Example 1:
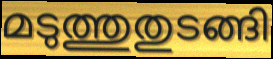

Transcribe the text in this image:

മടുത്തുതുടങ്ങി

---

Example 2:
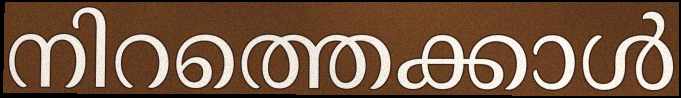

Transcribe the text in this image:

നിറത്തെക്കാൾ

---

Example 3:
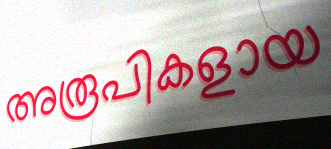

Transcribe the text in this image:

അരൂപികളായ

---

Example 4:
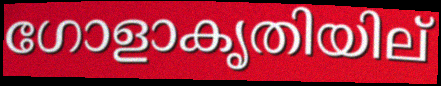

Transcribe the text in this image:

ഗോളാകൃതിയില്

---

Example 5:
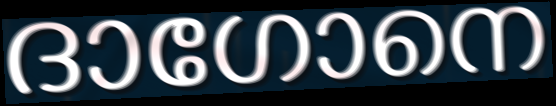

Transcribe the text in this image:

ദാഗോനെ